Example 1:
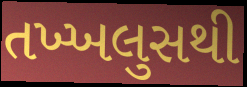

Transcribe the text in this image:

તખ્ખલુસથી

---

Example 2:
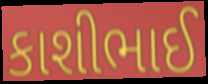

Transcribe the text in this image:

કાશીભાઈ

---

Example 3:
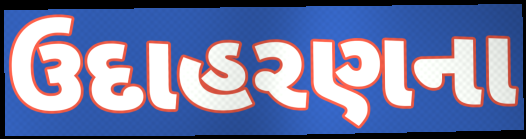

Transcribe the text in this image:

ઉદાહરણના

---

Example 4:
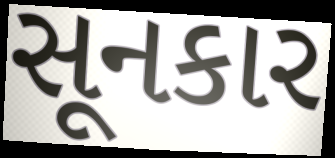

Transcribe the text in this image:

સૂનકાર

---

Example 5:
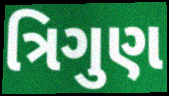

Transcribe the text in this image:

ત્રિગુણ